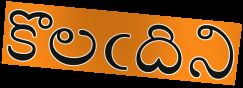
కొలఁదిని